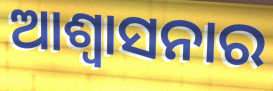
ଆଶ୍ୱାସନାର